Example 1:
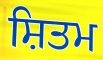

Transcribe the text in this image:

ਸ਼ਿਤਮ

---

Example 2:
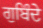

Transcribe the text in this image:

ਗੁਬਿੰਦੇ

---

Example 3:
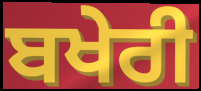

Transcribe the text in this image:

ਬਖੇਰੀ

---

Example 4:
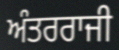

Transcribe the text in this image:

ਅੰਤਰਰਾਜੀ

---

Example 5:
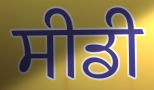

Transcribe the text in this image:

ਸੀਡੀ